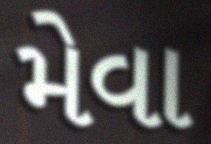
મેવા